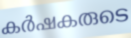
കർഷകരുടെ